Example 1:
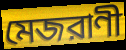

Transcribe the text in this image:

মেজরাণী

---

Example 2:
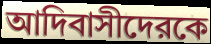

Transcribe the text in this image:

আদিবাসীদেরকে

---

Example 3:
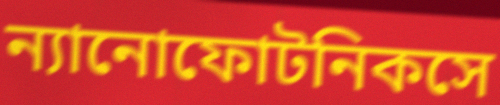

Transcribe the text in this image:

ন্যানোফোটনিকসে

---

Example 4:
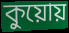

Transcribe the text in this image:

কুয়োয়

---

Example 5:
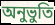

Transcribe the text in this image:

অনুভুতি